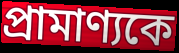
প্রামাণ্যকে